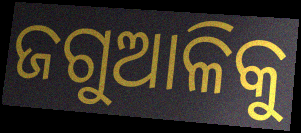
ଜଗୁଆଳିକୁ